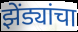
झेंड्यांचा